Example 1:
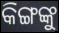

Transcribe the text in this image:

କିଙ୍ଗଙ୍କୁ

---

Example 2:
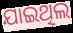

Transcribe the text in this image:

ଯାଇଥିଲ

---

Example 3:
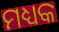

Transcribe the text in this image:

ମଧ୍ଯକ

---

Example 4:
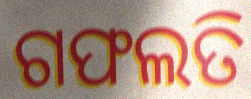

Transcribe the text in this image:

ଗଫଲତି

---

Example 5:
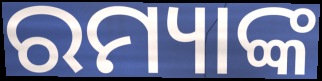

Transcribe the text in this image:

ରମ୍ୟାଙ୍କ